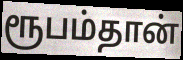
ரூபம்தான்